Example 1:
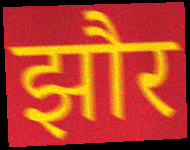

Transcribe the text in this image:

झौर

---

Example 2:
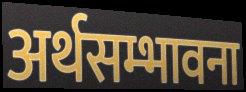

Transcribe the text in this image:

अर्थसम्भावना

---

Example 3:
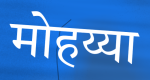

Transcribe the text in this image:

मोहय्या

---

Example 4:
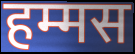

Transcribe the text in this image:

हम्मस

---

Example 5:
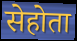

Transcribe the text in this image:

सेहोता